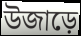
উজাড়ে